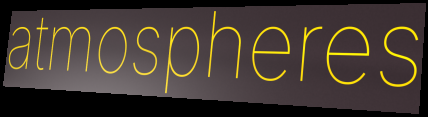
atmospheres